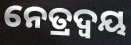
ନେତ୍ରଦ୍ୱୟ